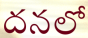
దనలో